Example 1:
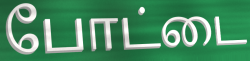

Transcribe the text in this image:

போட்டை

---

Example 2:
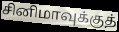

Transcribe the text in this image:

சினிமாவுக்குத்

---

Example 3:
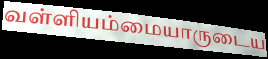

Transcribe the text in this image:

வள்ளியம்மையாருடைய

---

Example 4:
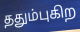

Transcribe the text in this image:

ததும்புகிற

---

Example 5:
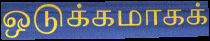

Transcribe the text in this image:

ஒடுக்கமாகக்